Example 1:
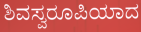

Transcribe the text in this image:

ಶಿವಸ್ವರೂಪಿಯಾದ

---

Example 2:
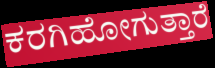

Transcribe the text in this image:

ಕರಗಿಹೋಗುತ್ತಾರೆ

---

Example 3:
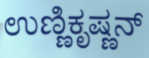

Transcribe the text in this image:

ಉಣ್ಣಿಕೃಷ್ಣನ್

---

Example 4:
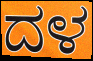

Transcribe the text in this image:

ದಳ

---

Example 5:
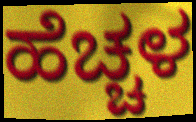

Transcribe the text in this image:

ಹೆಚ್ಚಳ